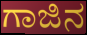
ಗಾಜಿನ